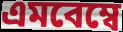
এমবেম্বে